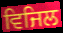
ਵਿਜਿਲ